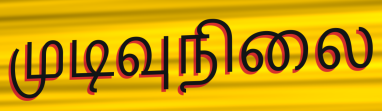
முடிவுநிலை